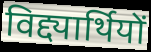
विद्द्यार्थियों